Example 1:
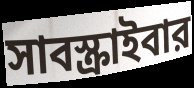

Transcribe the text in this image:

সাবস্ক্রাইবার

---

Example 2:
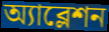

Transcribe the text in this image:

অ্যাব্লেশন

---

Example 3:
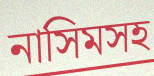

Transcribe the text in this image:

নাসিমসহ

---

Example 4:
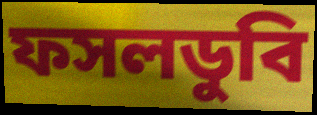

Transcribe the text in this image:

ফসলডুবি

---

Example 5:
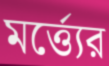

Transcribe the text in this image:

মর্ত্ত্যের